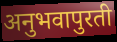
अनुभवापुरती